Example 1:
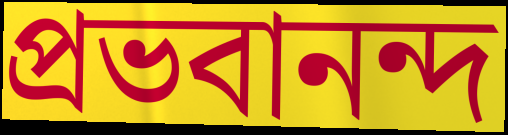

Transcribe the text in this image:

প্রভবানন্দ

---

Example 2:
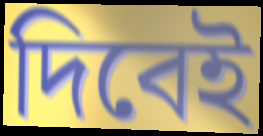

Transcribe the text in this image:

দিবেই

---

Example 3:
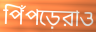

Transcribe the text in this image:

পিঁপড়েরাও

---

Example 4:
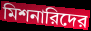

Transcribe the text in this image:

মিশনারিদের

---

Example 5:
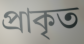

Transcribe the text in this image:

প্রাকৃত